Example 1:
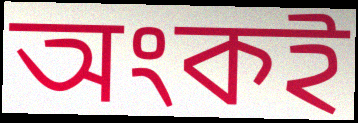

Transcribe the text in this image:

অংকই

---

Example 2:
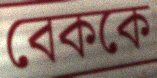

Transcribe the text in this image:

বেককে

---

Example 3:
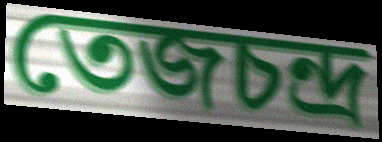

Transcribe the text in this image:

তেজচন্দ্র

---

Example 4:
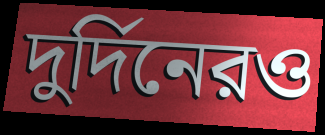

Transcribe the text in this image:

দুর্দিনেরও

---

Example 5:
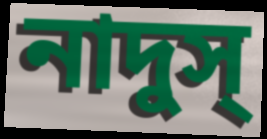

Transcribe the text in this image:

নাদুস্